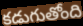
కడుగుతోంది